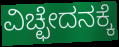
ವಿಚ್ಛೇದನಕ್ಕೆ